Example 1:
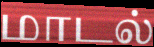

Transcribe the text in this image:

மாடல்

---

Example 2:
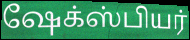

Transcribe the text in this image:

ஷேக்ஸ்பியர்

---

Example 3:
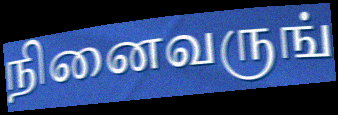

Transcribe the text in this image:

நினைவருங்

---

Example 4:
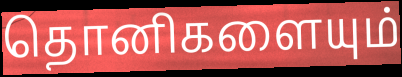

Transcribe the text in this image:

தொனிகளையும்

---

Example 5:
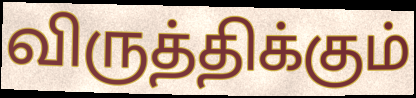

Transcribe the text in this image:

விருத்திக்கும்